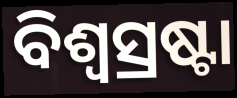
ବିଶ୍ୱସ୍ରଷ୍ଟା